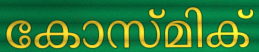
കോസ്മിക്